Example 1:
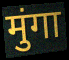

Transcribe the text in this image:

मुंगा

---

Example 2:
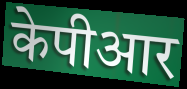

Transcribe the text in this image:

केपीआर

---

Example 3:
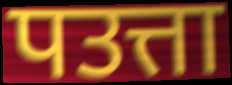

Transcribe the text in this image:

पउत्ता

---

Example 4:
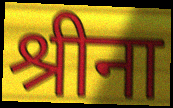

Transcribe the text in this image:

श्रीना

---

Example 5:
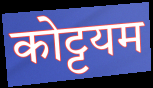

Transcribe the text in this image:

कोट्टयम